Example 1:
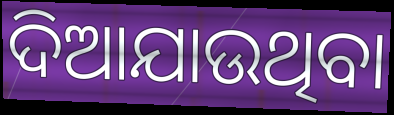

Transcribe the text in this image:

ଦିଆଯାଉଥିବା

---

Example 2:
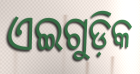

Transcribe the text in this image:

ଏଇଗୁଡ଼ିକ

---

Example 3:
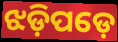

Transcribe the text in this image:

ଝଡ଼ିପଡ଼େ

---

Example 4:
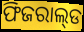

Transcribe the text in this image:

ଫିଜରାଲ୍‌ଡ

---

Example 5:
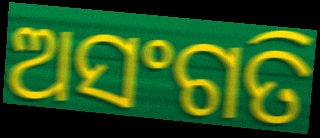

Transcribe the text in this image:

ଅସଂଗତି